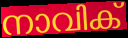
നാവിക്